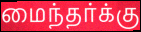
மைந்தர்க்கு